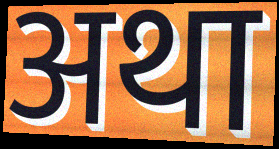
अथा